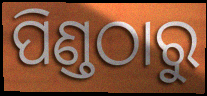
ପିଣ୍ଡଠାରୁ